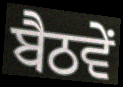
ਬੈਠਵੇਂ